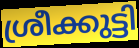
ശ്രീക്കുട്ടി